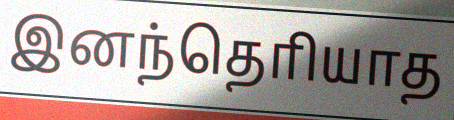
இனந்தெரியாத